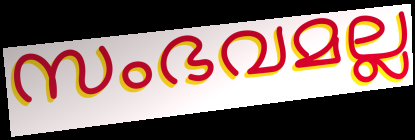
സംഭവമല്ല